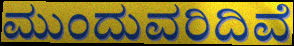
ಮುಂದುವರಿದಿವೆ